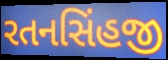
રતનસિંહજી